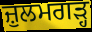
ਜ਼ੁਲਮਗੜ੍ਹ